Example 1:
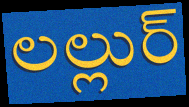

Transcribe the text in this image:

లల్లుర్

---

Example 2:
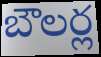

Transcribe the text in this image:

బౌలర్ల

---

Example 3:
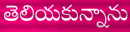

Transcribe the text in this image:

తెలియకున్నాను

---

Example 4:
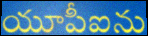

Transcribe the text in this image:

యూపీఐను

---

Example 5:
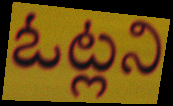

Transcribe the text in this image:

ఓట్లని